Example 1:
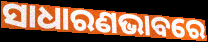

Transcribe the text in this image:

ସାଧାରଣଭାବରେ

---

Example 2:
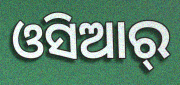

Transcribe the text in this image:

ଓସିଆର୍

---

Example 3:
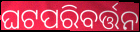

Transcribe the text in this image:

ଘଟପରିବର୍ତ୍ତନ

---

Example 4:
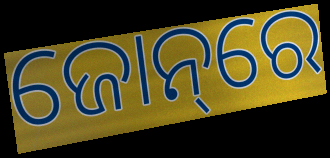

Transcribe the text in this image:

ଜୋନ୍‌ରେ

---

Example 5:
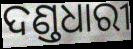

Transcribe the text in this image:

ଦଣ୍ଡଧାରୀ